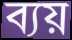
ব্যয়